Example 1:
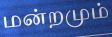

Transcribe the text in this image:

மன்றமும்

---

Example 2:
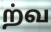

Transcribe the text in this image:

ற்வ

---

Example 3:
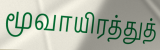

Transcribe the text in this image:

மூவாயிரத்துத்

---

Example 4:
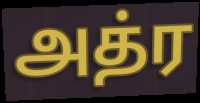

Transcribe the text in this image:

அத்ர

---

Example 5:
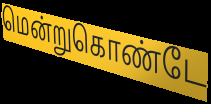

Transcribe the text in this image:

மென்றுகொண்டே